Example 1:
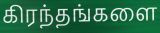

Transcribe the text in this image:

கிரந்தங்களை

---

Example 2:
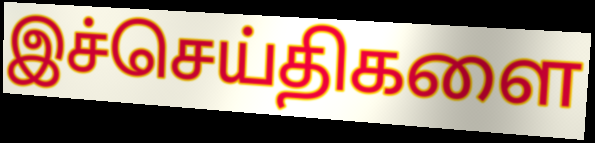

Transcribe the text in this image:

இச்செய்திகளை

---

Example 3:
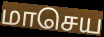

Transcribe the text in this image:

மாசெய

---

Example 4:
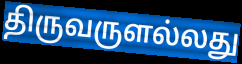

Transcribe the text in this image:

திருவருளல்லது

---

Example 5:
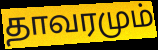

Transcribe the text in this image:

தாவரமும்